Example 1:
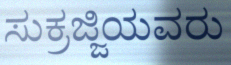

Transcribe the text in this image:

ಸುಕ್ರಜ್ಜಿಯವರು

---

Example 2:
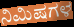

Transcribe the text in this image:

ನಿಮಿಷಗಳ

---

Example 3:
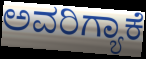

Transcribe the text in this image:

ಅವರಿಗ್ಯಾಕೆ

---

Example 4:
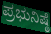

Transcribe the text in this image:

ಪ್ರಭುನಿಷ್ಠೆ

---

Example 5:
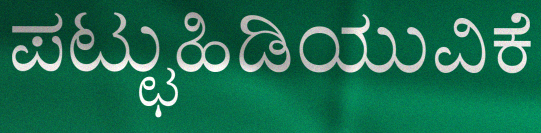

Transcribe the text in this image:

ಪಟ್ಟುಹಿಡಿಯುವಿಕೆ